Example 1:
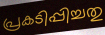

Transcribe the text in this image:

പ്രകടിപ്പിച്ചതു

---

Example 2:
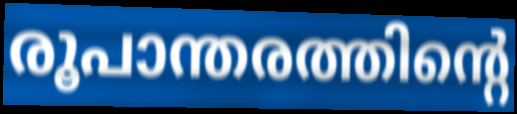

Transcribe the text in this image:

രൂപാന്തരത്തിന്റെ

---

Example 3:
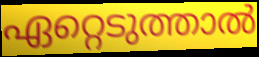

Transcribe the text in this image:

ഏറ്റെടുത്താൽ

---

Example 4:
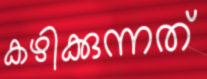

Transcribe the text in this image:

കഴിക്കുന്നത്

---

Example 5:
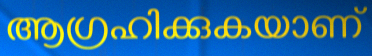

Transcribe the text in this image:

ആഗ്രഹിക്കുകയാണ്